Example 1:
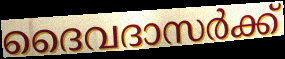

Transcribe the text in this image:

ദൈവദാസർക്ക്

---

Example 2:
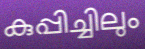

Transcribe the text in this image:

കുപ്പിച്ചിലും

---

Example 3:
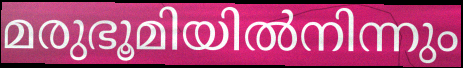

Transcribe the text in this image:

മരുഭൂമിയിൽനിന്നും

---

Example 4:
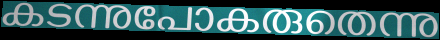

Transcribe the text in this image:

കടന്നുപോകരുതെന്നു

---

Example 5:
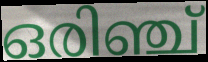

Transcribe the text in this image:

ഒരിഞ്ച്